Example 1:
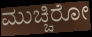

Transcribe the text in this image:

ಮುಚ್ಚಿರೋ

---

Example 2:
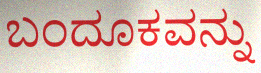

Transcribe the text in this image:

ಬಂದೂಕವನ್ನು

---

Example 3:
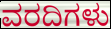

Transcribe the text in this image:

ವರದಿಗಳು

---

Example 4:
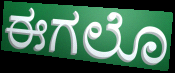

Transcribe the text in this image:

ಈಗಲೊ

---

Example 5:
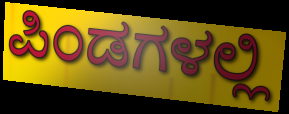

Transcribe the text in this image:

ಪಿಂಡಗಳಲ್ಲಿ